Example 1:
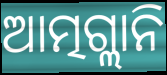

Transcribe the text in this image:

ଆତ୍ମଗ୍ଲାନି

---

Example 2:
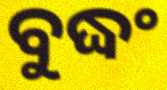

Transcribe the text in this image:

ବୁଦ୍ଧଂ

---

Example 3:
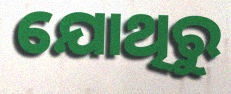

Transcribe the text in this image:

ଯୋଥିରୁ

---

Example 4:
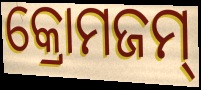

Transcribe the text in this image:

କ୍ରୋମଜମ୍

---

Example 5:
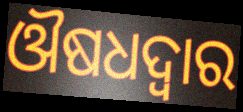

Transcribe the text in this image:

ଔଷଧଦ୍ୱାର